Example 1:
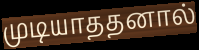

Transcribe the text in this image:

முடியாததனால்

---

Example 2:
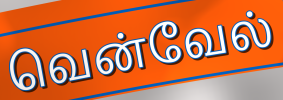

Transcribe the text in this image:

வென்வேல்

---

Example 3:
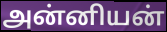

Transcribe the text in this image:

அன்னியன்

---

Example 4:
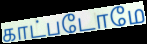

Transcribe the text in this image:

காட்படோமே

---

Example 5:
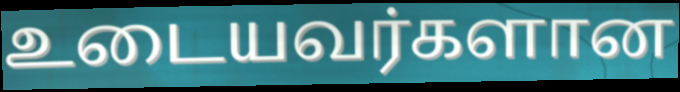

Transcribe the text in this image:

உடையவர்களான